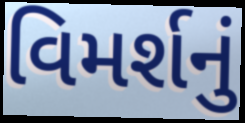
વિમર્શનું